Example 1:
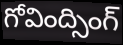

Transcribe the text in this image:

గోవింద్సింగ్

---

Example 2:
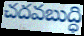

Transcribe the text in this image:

చదవబుద్ధి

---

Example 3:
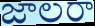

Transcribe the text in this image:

జాలరా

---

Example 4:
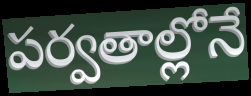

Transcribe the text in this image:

పర్వతాల్లోనే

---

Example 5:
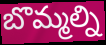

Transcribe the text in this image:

బొమ్మల్ని